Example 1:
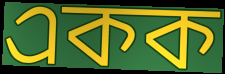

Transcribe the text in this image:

একক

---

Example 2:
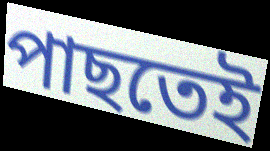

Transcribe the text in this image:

পাছতেই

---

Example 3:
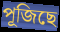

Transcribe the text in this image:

পূজিছে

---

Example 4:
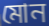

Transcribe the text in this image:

মোন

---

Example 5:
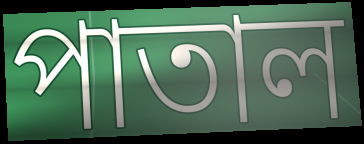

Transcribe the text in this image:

পাতাল